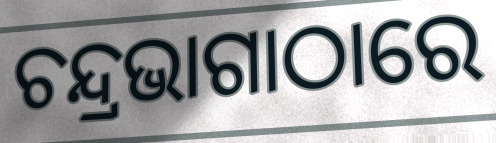
ଚନ୍ଦ୍ରଭାଗାଠାରେ